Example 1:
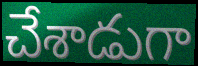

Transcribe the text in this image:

చేశాడుగా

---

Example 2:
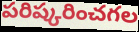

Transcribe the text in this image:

పరిష్కరించగల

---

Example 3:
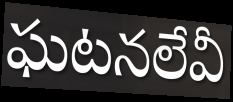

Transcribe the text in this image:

ఘటనలేవీ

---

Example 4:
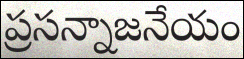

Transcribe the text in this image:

ప్రసన్నాజనేయం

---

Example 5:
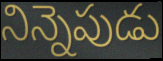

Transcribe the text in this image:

నిన్నెపుడు